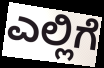
ಎಲ್ಲಿಗೆ